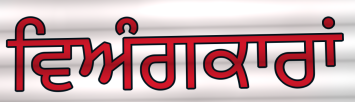
ਵਿਅੰਗਕਾਰਾਂ